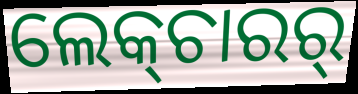
ଲେକ୍‍ଚାରର୍